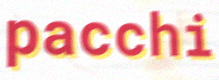
pacchi